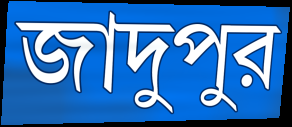
জাদুপুর